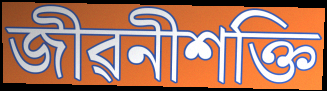
জীৱনীশক্তি